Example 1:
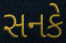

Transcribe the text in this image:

સનકે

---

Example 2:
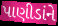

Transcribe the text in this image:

પાણીડાંને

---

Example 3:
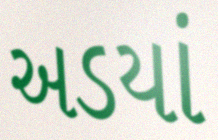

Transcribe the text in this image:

અડયાં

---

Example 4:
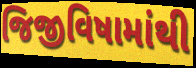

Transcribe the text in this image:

જિજીવિષામાંથી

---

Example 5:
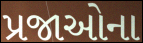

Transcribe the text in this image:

પ્રજાઓના